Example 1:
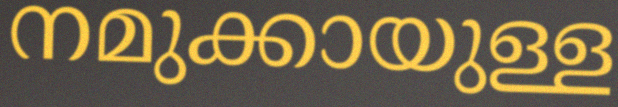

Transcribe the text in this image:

നമുക്കായുള്ള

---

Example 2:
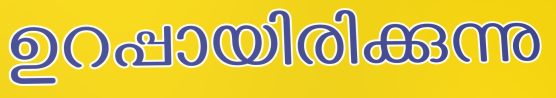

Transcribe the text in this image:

ഉറപ്പായിരിക്കുന്നു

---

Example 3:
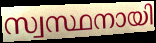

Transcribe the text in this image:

സ്വസ്ഥനായി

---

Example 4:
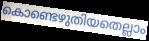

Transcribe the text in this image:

കൊണ്ടെഴുതിയതെല്ലാം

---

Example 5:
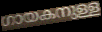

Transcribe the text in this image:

ഗായകനുള്ള